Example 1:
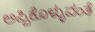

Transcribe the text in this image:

ಅಪ್ಪಿಕೊಳ್ಳುವಂತೆ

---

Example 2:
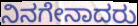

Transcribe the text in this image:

ನಿನಗೇನಾದರು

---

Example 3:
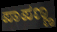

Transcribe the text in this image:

ಪಾಪಣ್ಣ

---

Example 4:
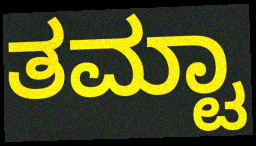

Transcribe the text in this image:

ತಮ್ಟಾ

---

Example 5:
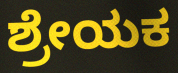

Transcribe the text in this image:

ಶ್ರೇಯಕ